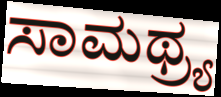
ಸಾಮಥ್ರ್ಯ